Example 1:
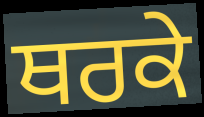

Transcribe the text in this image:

ਥਰਕੇ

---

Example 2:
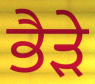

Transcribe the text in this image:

ਭੈਡ਼ੇ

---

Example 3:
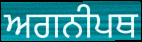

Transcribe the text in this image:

ਅਗਨੀਪਥ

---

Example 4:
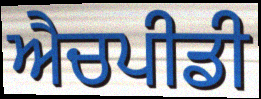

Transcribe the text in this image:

ਐਚਪੀਡੀ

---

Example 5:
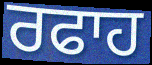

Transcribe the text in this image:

ਰਫਾਹ